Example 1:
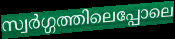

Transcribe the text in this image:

സ്വർഗ്ഗത്തിലെപ്പോലെ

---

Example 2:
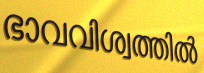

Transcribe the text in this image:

ഭാവവിശ്വത്തിൽ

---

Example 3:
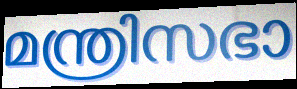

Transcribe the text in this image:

മന്ത്രിസഭാ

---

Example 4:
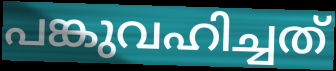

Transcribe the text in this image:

പങ്കുവഹിച്ചത്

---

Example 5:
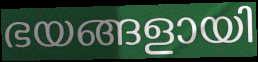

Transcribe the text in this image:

ഭയങ്ങളായി